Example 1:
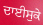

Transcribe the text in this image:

ਦਾਈਸੁਕੇ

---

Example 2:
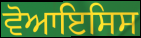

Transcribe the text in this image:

ਵੋਆਇਸਿਸ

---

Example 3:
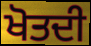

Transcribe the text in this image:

ਖੋਤਦੀ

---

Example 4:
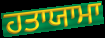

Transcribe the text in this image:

ਹਤਾਯਾਮਾ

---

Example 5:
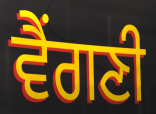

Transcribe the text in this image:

ਵੈਂਗਣੀ